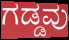
ಗಡ್ಡವು